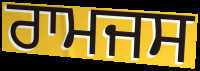
ਰਾਮਜਸ